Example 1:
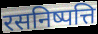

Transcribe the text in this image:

रसनिष्पत्ति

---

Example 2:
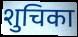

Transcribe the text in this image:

शुचिका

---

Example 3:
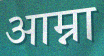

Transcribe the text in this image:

आम्ना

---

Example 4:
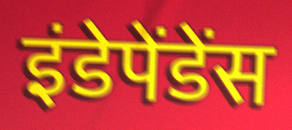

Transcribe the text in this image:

इंडेपेंडेंस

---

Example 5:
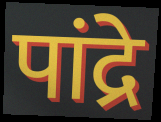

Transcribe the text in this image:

पांद्रे